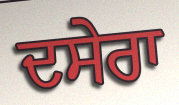
ਦਸੇਰਾ